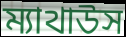
ম্যাথাউস